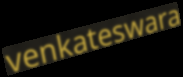
venkateswara